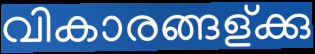
വികാരങ്ങള്ക്കു